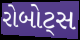
રોબોટ્સ